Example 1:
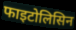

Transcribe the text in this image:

फाइटोलिसिन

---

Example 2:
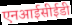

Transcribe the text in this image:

एनआईसीईडी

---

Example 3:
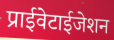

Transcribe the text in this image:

प्राईवेटाईजेशन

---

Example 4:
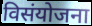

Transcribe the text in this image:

विसंयोजना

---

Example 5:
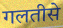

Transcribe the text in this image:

गलतीसे